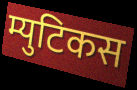
म्युटिकस